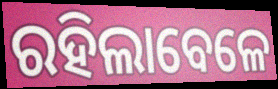
ରହିଲାବେଳେ